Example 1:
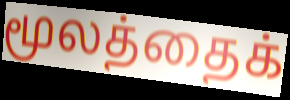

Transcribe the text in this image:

மூலத்தைக்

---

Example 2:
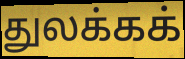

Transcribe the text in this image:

துலக்கக்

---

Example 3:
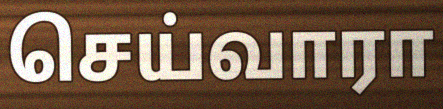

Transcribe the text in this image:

செய்வாரா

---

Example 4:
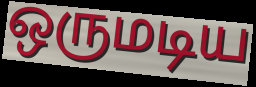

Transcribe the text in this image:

ஒருமடிய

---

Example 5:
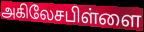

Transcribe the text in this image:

அகிலேசபிள்ளை